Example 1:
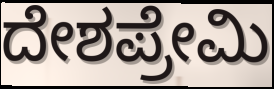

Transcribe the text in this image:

ದೇಶಪ್ರೇಮಿ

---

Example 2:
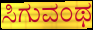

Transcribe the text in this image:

ಸಿಗುವಂಥ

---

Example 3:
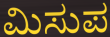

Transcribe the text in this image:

ಮಿಸುಪ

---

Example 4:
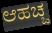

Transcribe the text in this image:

ಆಹಚ್ಚ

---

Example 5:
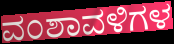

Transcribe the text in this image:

ವಂಶಾವಳಿಗಳ